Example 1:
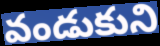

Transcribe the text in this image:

వండుకుని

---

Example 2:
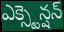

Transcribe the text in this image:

ఎక్స్టెన్షన్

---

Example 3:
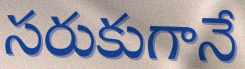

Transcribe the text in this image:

సరుకుగానే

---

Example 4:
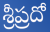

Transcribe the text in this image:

శ్రీప్రదో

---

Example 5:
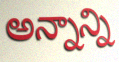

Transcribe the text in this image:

అన్నాన్ని